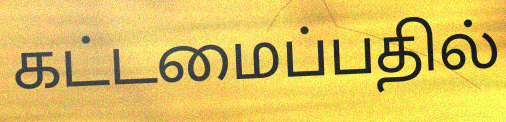
கட்டமைப்பதில்